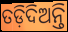
ତଡ଼ିଦିଅନ୍ତି